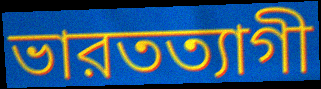
ভারতত্যাগী